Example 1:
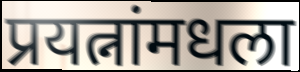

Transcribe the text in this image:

प्रयत्नांमधला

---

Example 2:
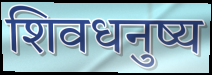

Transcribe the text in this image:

शिवधनुष्य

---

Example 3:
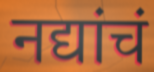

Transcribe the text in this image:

नद्यांचं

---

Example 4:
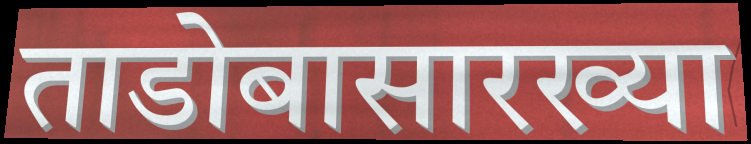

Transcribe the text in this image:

ताडोबासारख्या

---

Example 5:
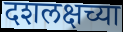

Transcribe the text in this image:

दशलक्षच्या